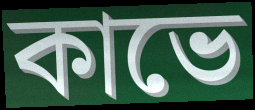
কাভে